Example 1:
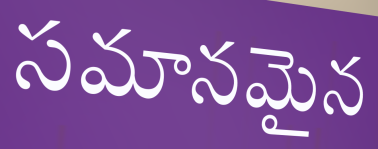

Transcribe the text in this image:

సమానమైన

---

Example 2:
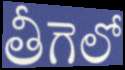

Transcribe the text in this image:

తీగెలో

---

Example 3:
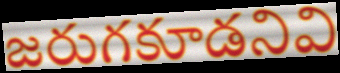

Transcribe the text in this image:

జరుగకూడనివి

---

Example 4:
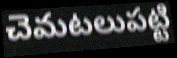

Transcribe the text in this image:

చెమటలుపట్టి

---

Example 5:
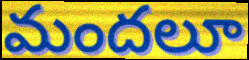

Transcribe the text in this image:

మందలూ